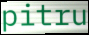
pitru